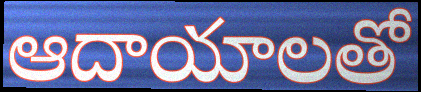
ఆదాయాలతో